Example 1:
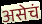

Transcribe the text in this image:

असेचं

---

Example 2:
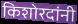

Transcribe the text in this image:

किशोरदांनी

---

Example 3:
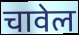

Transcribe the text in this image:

चावेल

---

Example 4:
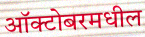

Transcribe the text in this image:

ऑक्टोबरमधील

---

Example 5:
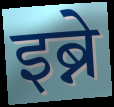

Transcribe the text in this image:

इब्ने